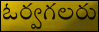
ఓర్వగలరు